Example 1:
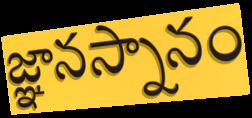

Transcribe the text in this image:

జ్ఞానస్నానం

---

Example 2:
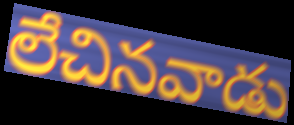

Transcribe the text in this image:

లేచినవాడు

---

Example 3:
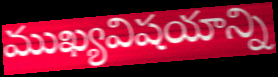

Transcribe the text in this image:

ముఖ్యవిషయాన్ని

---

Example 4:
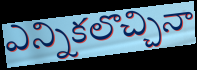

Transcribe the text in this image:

ఎన్నికలొచ్చినా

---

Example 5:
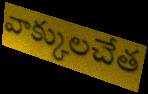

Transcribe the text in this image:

వాక్కులచేత